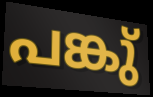
പങ്കു്